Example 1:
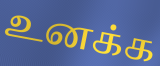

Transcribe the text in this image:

உனக்க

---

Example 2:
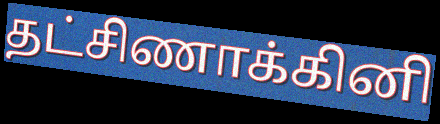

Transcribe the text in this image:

தட்சிணாக்கினி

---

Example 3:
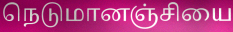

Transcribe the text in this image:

நெடுமானஞ்சியை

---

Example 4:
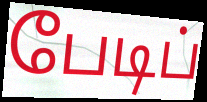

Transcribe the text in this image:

பேடிப்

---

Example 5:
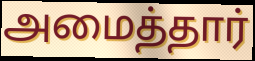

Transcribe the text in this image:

அமைத்தார்